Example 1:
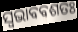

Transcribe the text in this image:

ସ୍ୱଭାବବଶତଃ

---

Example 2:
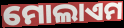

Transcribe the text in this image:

ମୋଲାଏମ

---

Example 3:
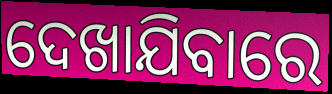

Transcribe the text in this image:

ଦେଖାଯିବାରେ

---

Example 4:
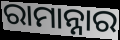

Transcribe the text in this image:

ରାମାନ୍ନାର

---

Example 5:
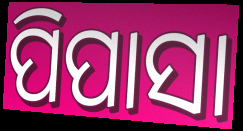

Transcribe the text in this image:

ପିପାସା